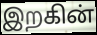
இறகின்